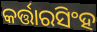
କର୍ତ୍ତାରସିଂହ